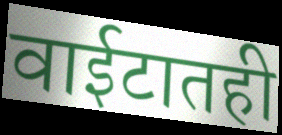
वाईटातही